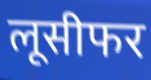
लूसीफर